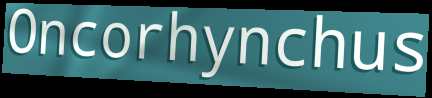
Oncorhynchus